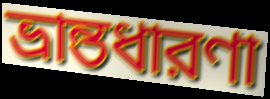
ভ্রান্তধারণা